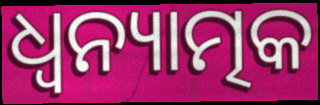
ଧ୍ୱନ୍ୟାତ୍ମକ